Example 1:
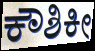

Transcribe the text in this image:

ಕೌಶಿಕೀ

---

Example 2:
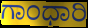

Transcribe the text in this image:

ಗಾಂಧಾರಿ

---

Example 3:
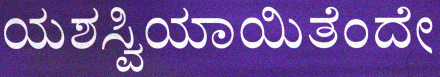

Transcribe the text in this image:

ಯಶಸ್ವಿಯಾಯಿತೆಂದೇ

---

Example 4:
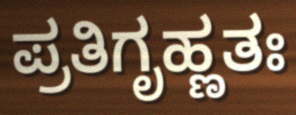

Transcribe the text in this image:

ಪ್ರತಿಗೃಹ್ಣತಃ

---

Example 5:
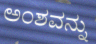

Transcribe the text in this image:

ಅಂಶವನ್ನು